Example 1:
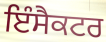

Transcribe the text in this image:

ਇੰਸੈਕਟਰ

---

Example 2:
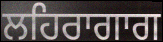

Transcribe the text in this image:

ਲਹਿਰਾਗਾਗ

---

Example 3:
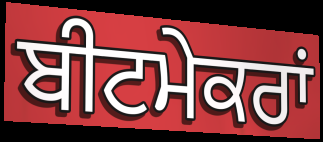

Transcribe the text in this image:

ਬੀਟਮੇਕਰਾਂ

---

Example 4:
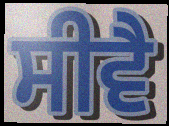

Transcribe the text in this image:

ਸੀਵੈ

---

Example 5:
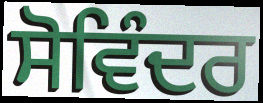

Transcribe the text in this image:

ਸੋਵਿੰਦਰ